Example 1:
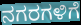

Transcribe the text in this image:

ನಗರಗಳಿಗೆ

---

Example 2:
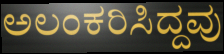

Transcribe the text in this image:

ಅಲಂಕರಿಸಿದ್ದವು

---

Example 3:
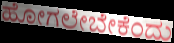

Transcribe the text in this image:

ಹೋಗಲೇಬೇಕೆಂದು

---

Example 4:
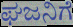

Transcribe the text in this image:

ಘಜನಿಗೆ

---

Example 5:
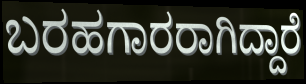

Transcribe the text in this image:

ಬರಹಗಾರರಾಗಿದ್ದಾರೆ